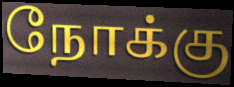
நோக்கு